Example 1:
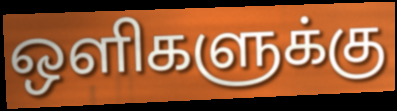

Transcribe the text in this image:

ஒளிகளுக்கு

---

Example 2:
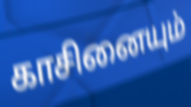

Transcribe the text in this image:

காசினையும்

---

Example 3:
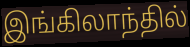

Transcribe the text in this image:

இங்கிலாந்தில்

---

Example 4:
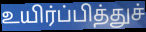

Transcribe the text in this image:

உயிர்ப்பித்துச்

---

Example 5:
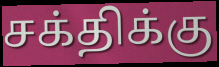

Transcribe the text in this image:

சக்திக்கு